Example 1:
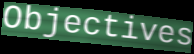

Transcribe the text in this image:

Objectives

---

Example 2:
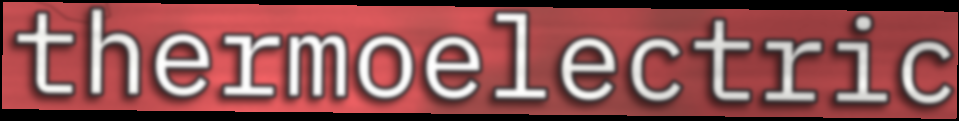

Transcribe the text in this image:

thermoelectric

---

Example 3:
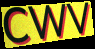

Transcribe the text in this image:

CWV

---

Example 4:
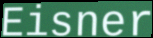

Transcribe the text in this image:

Eisner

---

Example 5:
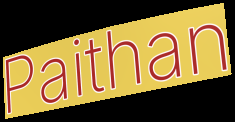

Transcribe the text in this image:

Paithan